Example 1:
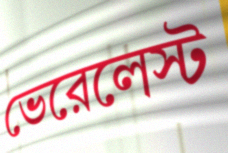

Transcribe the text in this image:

ভেরেলেস্ট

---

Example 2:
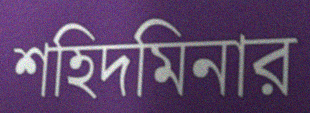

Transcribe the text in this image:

শহিদমিনার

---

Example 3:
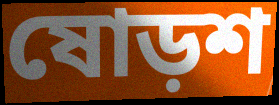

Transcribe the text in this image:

ষোড়শ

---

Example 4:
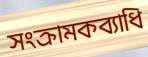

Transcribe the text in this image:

সংক্রামকব্যাধি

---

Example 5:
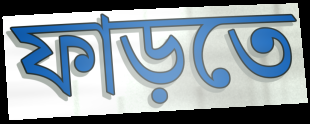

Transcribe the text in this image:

ফাড়তে